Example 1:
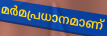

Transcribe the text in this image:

മർമപ്രധാനമാണ്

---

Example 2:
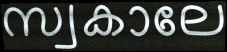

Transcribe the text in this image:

സ്വകാലേ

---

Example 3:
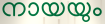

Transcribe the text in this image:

നായയും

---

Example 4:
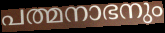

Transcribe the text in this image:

പത്മനാഭനും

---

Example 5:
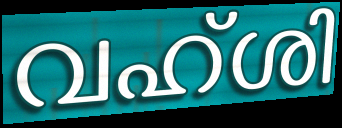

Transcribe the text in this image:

വഹ്ശി